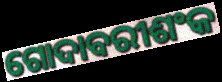
ଗୋଦାବରୀଶଂକ